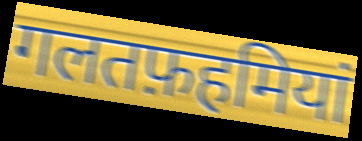
गलतफ़हमियां